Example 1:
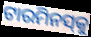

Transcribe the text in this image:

ଟାରମିନସ୍‌କୁ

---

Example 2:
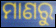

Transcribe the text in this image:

ମାଣରୁ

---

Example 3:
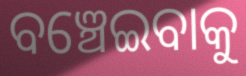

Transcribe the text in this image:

ବଞ୍ଚେଇବାକୁ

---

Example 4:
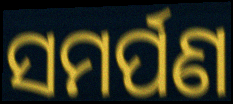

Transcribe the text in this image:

ସମର୍ପଣ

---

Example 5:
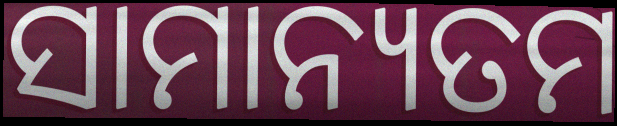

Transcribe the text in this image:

ସାମାନ୍ୟତମ